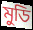
মুডি